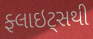
ફ્લાઇટ્સથી